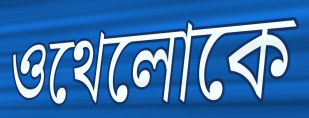
ওথেলোকে